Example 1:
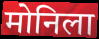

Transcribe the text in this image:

मोनिला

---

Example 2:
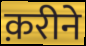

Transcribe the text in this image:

क़रीने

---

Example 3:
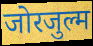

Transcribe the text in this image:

जोरजुल्म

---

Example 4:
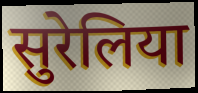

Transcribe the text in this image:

सुरेलिया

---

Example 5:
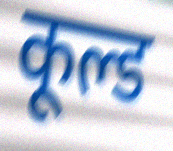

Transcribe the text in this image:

कूल्ड